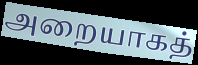
அறையாகத்